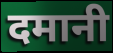
दमानी